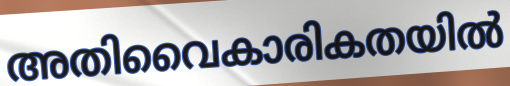
അതിവൈകാരികതയിൽ